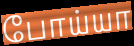
போய்யா